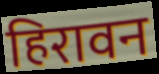
हिरावन